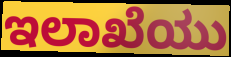
ಇಲಾಖೆಯು